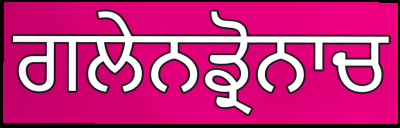
ਗਲੇਨਡ੍ਰੋਨਾਚ